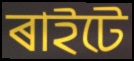
ৰাইটে